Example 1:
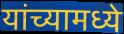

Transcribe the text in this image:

यांच्यामध्ये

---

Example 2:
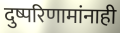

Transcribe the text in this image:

दुष्परिणामांनाही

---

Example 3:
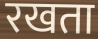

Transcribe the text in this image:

रखता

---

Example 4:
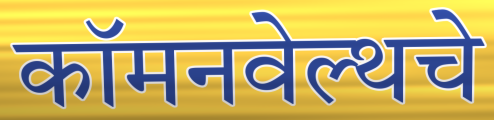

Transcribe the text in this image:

कॉमनवेल्थचे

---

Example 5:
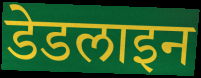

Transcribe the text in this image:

डेडलाइन